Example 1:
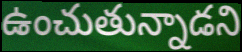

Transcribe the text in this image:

ఉంచుతున్నాడని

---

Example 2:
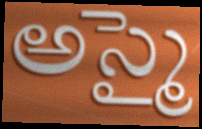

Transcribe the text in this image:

అస్మై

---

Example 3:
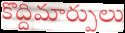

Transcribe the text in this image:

కొద్దిమార్పులు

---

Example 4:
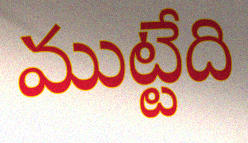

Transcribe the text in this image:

ముట్టేది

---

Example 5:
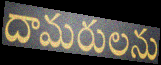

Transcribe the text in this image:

దామరులను